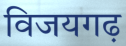
विजयगढ़